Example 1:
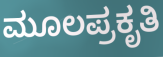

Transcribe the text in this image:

ಮೂಲಪ್ರಕೃತಿ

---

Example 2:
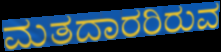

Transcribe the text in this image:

ಮತದಾರರಿರುವ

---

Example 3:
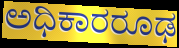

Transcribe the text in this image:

ಅಧಿಕಾರರೂಢ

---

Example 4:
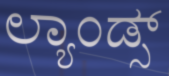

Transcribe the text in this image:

ಲ್ಯಾಂಡ್ಸ್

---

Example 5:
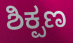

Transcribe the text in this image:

ಶಿಕ್ಪಣ